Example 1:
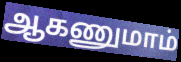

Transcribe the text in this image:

ஆகணுமாம்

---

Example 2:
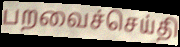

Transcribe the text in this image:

பறவைச்செய்தி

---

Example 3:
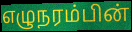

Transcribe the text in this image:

எழுநரம்பின்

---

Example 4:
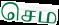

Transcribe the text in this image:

செம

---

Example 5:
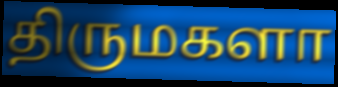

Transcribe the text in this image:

திருமகளா